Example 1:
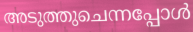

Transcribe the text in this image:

അടുത്തുചെന്നപ്പോൾ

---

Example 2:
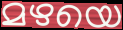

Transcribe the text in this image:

മഴയെ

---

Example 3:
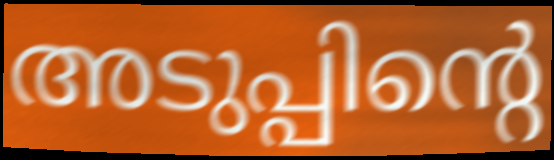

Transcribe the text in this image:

അടുപ്പിന്റെ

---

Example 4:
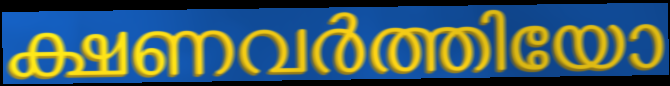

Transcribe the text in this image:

ക്ഷണവർത്തിയോ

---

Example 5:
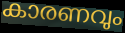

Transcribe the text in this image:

കാരണവും